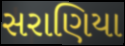
સરાણિયા